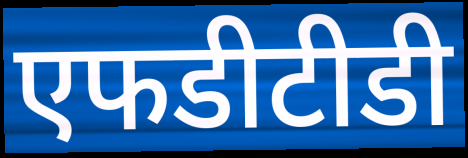
एफडीटीडी